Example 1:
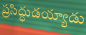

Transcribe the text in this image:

ప్రసిద్ధుడయ్యాడు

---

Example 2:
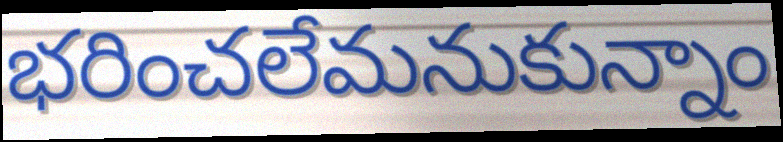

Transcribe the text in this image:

భరించలేమనుకున్నాం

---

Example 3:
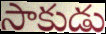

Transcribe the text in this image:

సాకుడు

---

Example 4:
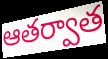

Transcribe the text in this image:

ఆతర్వాత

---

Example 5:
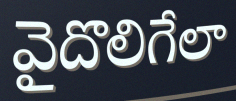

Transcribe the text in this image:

వైదొలిగేలా